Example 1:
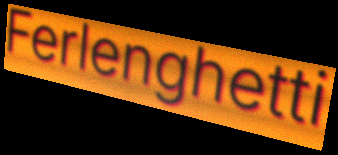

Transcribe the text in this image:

Ferlenghetti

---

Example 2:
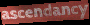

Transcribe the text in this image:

ascendancy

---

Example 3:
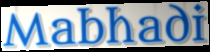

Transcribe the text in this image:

Mabhadi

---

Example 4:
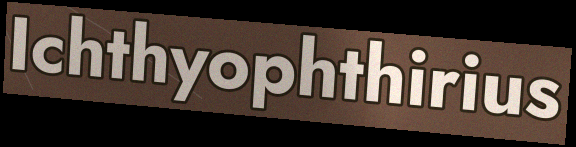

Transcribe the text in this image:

Ichthyophthirius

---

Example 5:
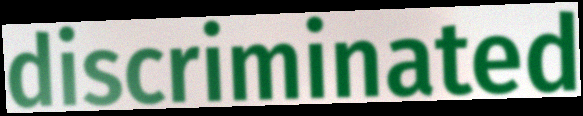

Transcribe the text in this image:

discriminated